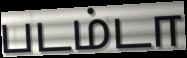
படம்டா